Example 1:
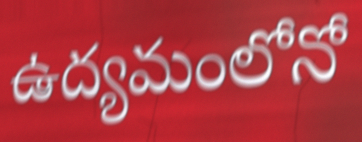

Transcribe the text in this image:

ఉద్యమంలోనో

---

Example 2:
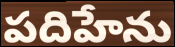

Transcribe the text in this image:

పదిహేను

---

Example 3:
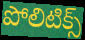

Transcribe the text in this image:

పోలిటిక్స్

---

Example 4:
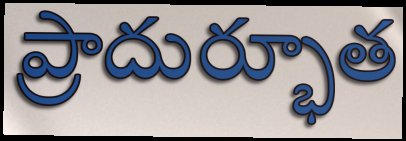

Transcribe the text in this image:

ప్రాదుర్భూత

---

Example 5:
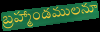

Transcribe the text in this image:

బ్రహ్మాండములనూ